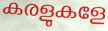
കരളുകളേ